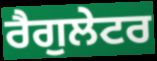
ਰੈਗੁਲੇਟਰ